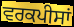
ਵਰਕਪੀਸਾਂ